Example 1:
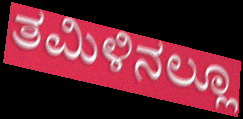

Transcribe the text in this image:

ತಮಿಳಿನಲ್ಲೂ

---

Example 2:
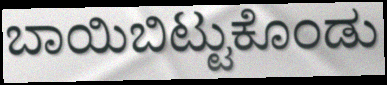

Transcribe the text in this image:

ಬಾಯಿಬಿಟ್ಟುಕೊಂಡು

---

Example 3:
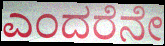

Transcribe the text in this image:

ಎಂದರೆನೇ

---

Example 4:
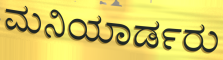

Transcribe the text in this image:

ಮನಿಯಾರ್ಡರು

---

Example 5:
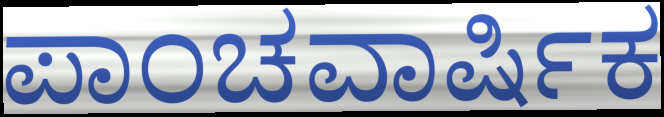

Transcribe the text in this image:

ಪಾಂಚವಾರ್ಷಿಕ